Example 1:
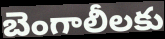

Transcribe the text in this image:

బెంగాలీలకు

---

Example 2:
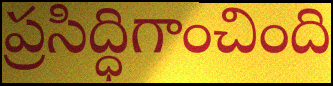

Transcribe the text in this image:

ప్రసిద్ధిగాంచింది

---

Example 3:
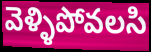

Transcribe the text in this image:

వెళ్ళిపోవలసి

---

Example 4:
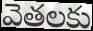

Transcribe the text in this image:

వెతలకు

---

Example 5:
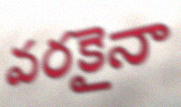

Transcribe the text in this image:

వరకైనా